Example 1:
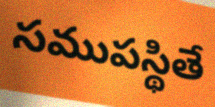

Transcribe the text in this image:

సముపస్థితే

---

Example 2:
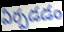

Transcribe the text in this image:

ఏర్పడడం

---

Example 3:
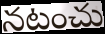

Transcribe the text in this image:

నటంచు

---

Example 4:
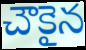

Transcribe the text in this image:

చౌకైన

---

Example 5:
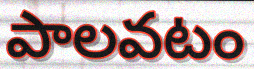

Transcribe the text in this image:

పాలవటం